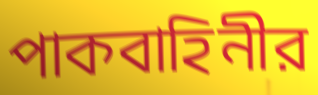
পাকবাহিনীর